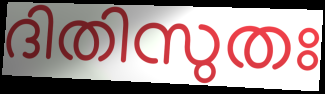
ദിതിസുതഃ